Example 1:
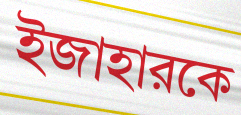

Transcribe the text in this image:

ইজাহারকে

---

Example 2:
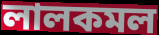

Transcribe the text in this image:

লালকমল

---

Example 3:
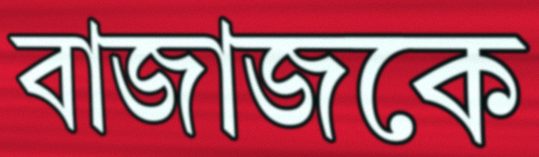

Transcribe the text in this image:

বাজাজকে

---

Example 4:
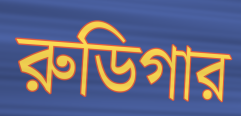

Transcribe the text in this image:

রুডিগার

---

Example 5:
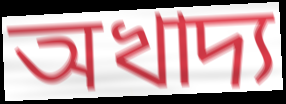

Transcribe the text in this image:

অখাদ্য